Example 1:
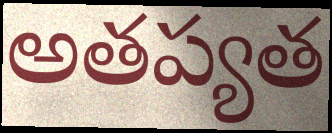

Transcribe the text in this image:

అతప్యత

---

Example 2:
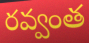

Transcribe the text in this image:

రవ్వంత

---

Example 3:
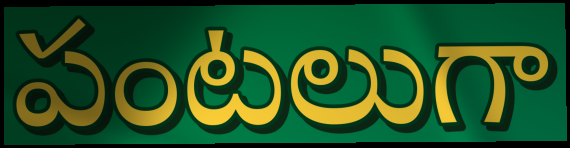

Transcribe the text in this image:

పంటలుగా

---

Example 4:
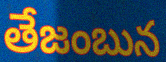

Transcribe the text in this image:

తేజంబున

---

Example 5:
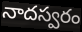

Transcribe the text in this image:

నాదస్వరం